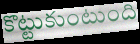
కొట్టుకుంటుంది